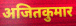
अजितकुमार